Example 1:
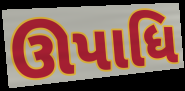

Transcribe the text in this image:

ઊપાધિ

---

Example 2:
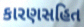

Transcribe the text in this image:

કારણસહિત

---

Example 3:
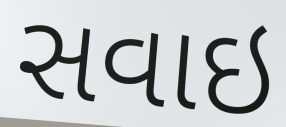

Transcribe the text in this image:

સવાઇ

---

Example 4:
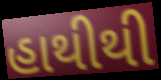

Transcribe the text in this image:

હાથીથી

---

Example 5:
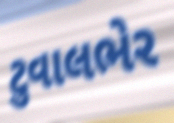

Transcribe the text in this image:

ટુવાલભેર